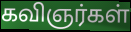
கவிஞர்கள்